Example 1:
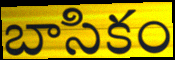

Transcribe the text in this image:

బాసికం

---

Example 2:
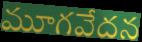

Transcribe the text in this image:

మూగవేదన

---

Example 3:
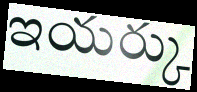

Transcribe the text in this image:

ఇయర్కు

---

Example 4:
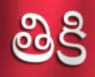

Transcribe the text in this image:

తికి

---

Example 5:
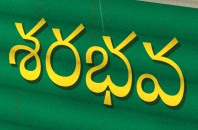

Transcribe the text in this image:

శరభవ